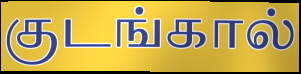
குடங்கால்